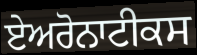
ਏਅਰੋਨਾਟੀਕਸ